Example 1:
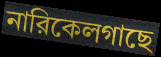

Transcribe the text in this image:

নারিকেলগাছে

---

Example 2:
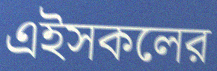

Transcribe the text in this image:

এইসকলের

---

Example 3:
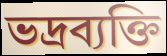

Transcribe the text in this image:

ভদ্রব্যক্তি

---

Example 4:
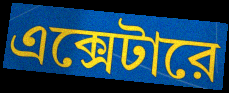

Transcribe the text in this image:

এক্সেটারে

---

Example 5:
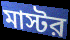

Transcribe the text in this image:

মাস্টর